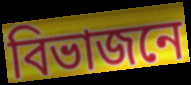
বিভাজনে